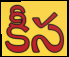
కీస